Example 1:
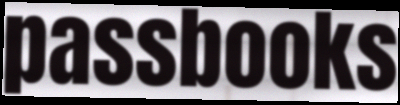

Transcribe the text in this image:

passbooks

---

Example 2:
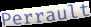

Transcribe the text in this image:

Perrault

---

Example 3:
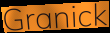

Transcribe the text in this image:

Granick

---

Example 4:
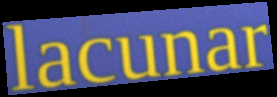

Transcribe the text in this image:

lacunar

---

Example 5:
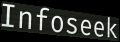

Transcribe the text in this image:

Infoseek